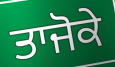
ਤਾਜੋਕੇ